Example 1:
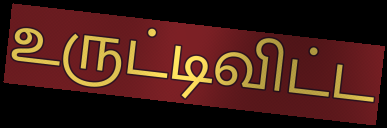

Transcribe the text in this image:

உருட்டிவிட்ட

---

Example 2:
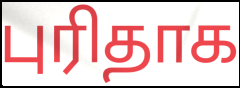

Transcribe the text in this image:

புரிதாக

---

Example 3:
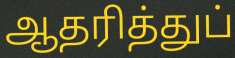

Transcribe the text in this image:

ஆதரித்துப்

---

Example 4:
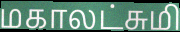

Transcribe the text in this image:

மகாலட்சுமி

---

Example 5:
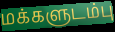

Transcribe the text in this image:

மக்களுடம்பு